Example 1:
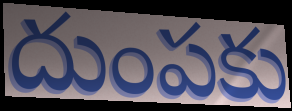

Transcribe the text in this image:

దుంపకు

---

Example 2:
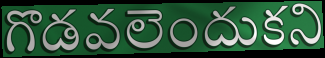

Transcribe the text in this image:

గొడవలెందుకని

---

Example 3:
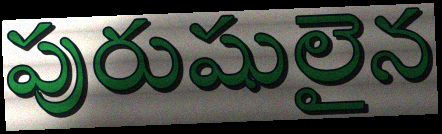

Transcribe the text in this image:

పురుషులైన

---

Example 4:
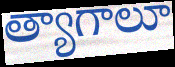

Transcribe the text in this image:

త్యాగాలూ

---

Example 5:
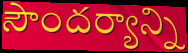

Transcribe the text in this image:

సౌందర్యాన్ని